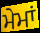
ਮੇਮਾਂ